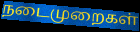
நடைமுறைகள்